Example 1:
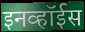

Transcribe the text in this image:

इनव्हॉईस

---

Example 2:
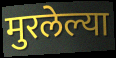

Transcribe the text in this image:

मुरलेल्या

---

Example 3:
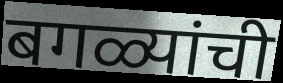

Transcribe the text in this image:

बगळ्यांची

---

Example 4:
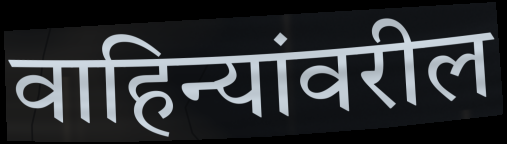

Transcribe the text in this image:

वाहिन्यांवरील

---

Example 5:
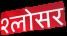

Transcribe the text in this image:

श्लोसर